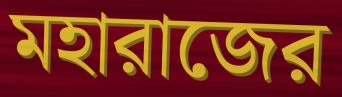
মহারাজের